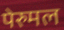
पेरुमल